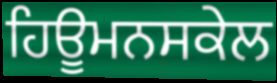
ਹਿਊਮਨਸਕੇਲ